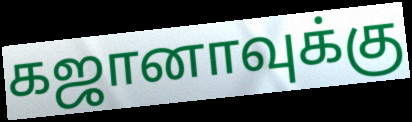
கஜானாவுக்கு